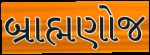
બ્રાહ્મણોજ